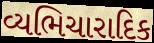
વ્યભિચારાદિક